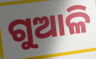
ଗୁଆଳି